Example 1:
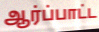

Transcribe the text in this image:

ஆர்ப்பாட்ட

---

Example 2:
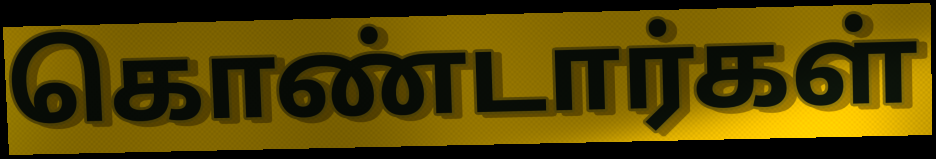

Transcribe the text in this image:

கொண்டார்கள்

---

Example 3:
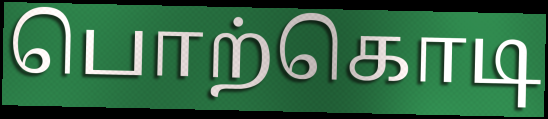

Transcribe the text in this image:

பொற்கொடி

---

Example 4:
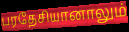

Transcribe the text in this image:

பரதேசியானாலும்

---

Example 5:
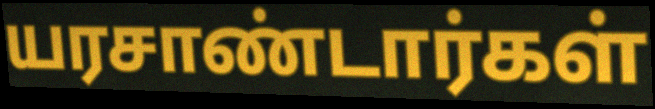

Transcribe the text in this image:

யரசாண்டார்கள்